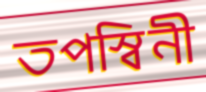
তপস্বিনী